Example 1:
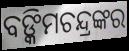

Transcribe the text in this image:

ବଙ୍କିମଚନ୍ଦ୍ରଙ୍କର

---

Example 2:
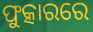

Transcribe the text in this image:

ଫୁତ୍କାରରେ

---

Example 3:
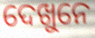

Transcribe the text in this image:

ଦେଖୁନେ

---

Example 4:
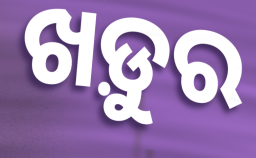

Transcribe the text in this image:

ଖଡ଼ୁର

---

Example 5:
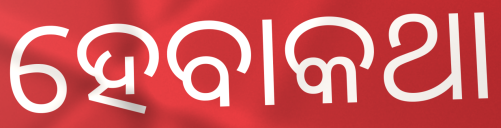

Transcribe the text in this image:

ହେବାକଥା